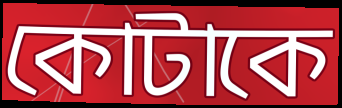
কোটাকে